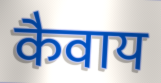
कैवाय